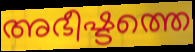
അഭീഷ്ടത്തെ